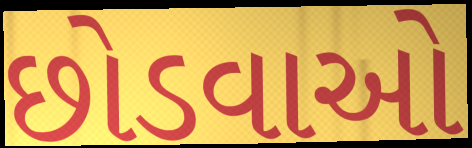
છોડવાઓ